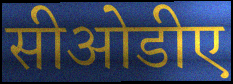
सीओडीए